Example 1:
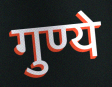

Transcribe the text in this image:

गुण्ये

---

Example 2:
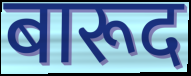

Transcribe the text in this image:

बारूद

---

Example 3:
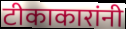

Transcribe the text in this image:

टीकाकारांनी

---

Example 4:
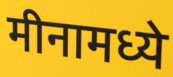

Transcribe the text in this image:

मीनामध्ये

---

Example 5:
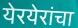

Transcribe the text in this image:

येरयेरांचा